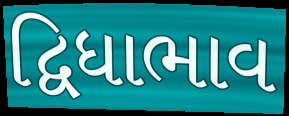
દ્વિધાભાવ